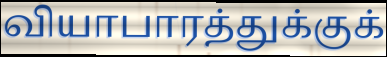
வியாபாரத்துக்குக்